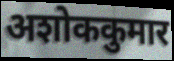
अशोककुमार